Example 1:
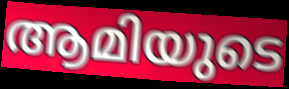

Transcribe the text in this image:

ആമിയുടെ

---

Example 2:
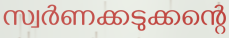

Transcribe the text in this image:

സ്വർണക്കടുക്കന്റെ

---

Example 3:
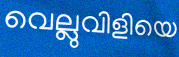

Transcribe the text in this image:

വെല്ലുവിളിയെ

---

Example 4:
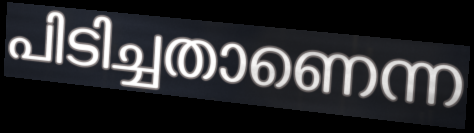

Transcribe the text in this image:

പിടിച്ചതാണെന്ന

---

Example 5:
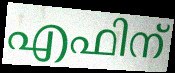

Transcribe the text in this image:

എഫിന്